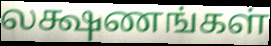
லக்ஷணங்கள்